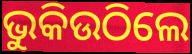
ଭୁକିଉଠିଲେ